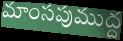
మాంసపుముద్ద